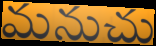
మనుచు